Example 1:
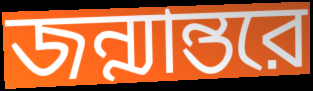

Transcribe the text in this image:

জন্মান্তরে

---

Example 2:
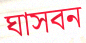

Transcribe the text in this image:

ঘাসবন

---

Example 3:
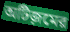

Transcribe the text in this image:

অটিজ়মের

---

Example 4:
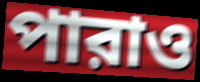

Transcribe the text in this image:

পারাও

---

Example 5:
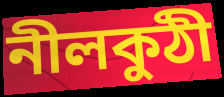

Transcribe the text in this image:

নীলকুঠী